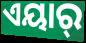
ଏୟାର୍